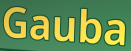
Gauba